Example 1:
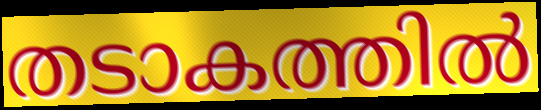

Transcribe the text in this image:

തടാകത്തിൽ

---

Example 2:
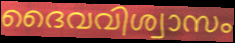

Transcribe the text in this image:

ദൈവവിശ്വാസം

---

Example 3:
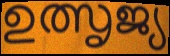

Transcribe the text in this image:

ഉത്സൃജ്യ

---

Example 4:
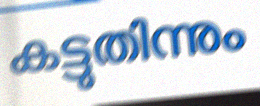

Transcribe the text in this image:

കട്ടുതിന്നും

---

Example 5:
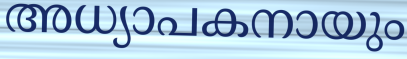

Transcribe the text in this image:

അധ്യാപകനായും